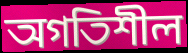
অগতিশীল